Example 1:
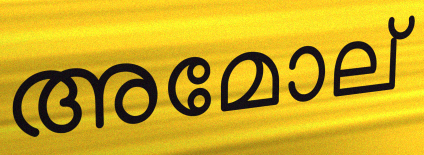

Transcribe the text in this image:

അമോല്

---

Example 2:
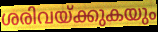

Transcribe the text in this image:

ശരിവയ്ക്കുകയും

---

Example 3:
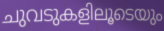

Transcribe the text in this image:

ചുവടുകളിലൂടെയും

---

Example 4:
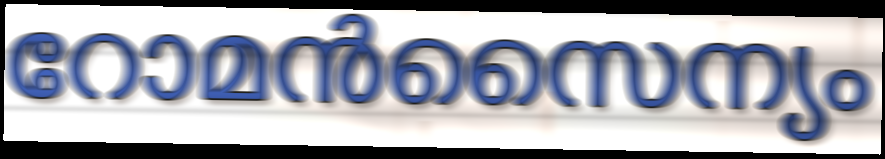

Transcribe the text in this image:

റോമൻസൈന്യം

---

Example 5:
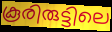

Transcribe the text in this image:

കൂരിരുട്ടിലെ